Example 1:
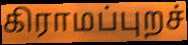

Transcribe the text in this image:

கிராமப்புறச்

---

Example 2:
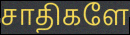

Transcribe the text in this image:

சாதிகளே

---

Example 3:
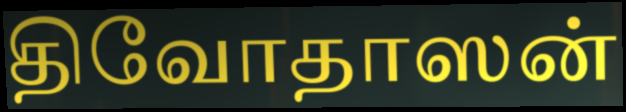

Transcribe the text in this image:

திவோதாஸன்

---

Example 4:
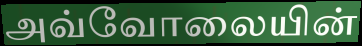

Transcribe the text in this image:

அவ்வோலையின்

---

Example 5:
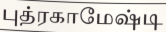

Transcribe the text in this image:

புத்ரகாமேஷ்டி